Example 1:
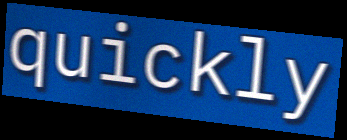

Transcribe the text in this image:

quickly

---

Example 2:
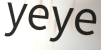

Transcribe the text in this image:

yeye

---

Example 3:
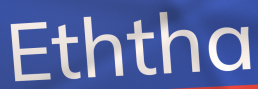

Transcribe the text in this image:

Eththa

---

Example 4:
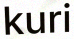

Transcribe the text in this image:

kuri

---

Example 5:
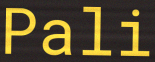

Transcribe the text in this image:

Pali